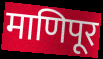
माणिपूर